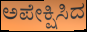
ಅಪೇಕ್ಷಿಸಿದ